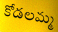
కోడలమ్మ